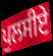
ਪੁਲਸੀਏ